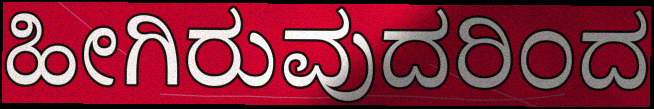
ಹೀಗಿರುವುದರಿಂದ